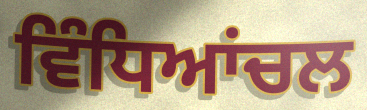
ਵਿੰਧਿਆਂਚਲ